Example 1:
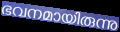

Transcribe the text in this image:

ഭവനമായിരുന്നു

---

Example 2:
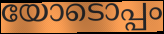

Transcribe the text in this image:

യോടൊപ്പം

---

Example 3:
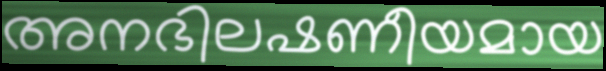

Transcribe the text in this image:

അനഭിലഷണീയമായ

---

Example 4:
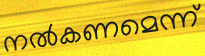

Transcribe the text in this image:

നൽകണമെന്ന്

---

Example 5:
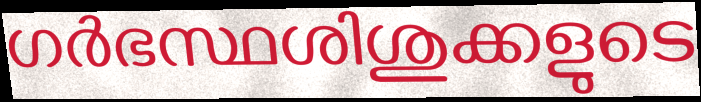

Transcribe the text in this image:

ഗർഭസ്ഥശിശുക്കളുടെ